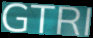
GTRI